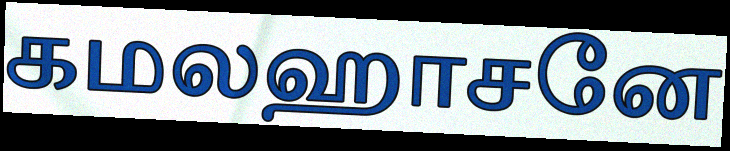
கமலஹாசனே